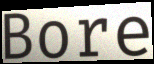
Bore